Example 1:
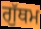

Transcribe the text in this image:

ਗੁੱਥਮ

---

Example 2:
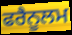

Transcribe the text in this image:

ਫਰੈਨੂਲਮ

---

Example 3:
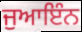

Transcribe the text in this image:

ਜੁਆਇੰਨ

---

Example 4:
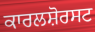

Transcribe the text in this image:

ਕਾਰਲਸ਼ੋਰਸਟ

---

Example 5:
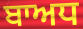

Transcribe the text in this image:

ਬਾਅਧ